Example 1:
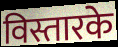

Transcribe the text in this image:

विस्तारके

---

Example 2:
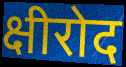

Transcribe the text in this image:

क्षीरोद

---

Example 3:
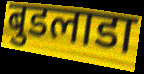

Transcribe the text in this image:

बुडलाडा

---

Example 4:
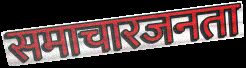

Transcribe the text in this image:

समाचारजनता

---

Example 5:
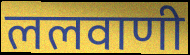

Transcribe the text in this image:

ललवाणी